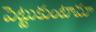
పెట్టుకుంటామా